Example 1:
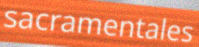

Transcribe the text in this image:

sacramentales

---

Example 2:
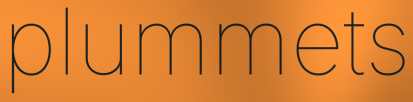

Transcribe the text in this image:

plummets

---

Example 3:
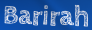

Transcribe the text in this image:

Barirah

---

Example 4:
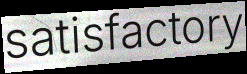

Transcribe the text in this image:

satisfactory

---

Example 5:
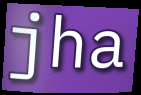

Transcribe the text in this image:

jha